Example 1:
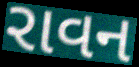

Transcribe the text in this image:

રાવન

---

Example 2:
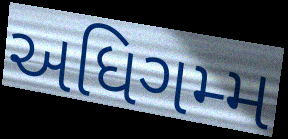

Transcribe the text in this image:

અધિગમ્મ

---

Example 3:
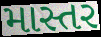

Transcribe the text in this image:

માસ્તર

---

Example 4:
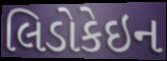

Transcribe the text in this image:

લિડોકેઇન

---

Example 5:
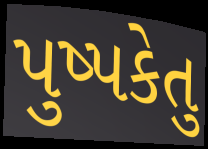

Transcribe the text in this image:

પુષ્પકેતુ